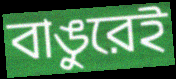
বাঙুরেই